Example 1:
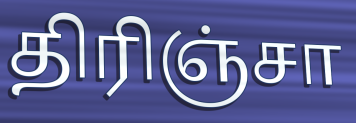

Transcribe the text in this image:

திரிஞ்சா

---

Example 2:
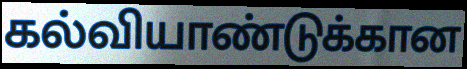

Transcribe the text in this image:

கல்வியாண்டுக்கான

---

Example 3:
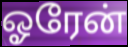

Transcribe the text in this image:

ஓரேன்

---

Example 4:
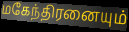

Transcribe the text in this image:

மகேந்திரனையும்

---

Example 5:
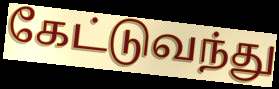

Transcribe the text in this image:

கேட்டுவந்து